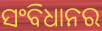
ସଂବିଧାନର